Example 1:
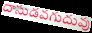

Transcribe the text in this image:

దాసుడవగుదువు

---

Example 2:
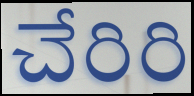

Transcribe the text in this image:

చేరిరి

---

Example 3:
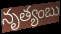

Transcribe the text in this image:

నృత్యంబు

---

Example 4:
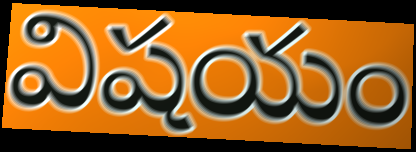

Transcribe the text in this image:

విషయం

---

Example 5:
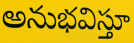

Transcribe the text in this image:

అనుభవిస్తూ